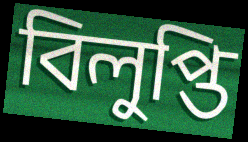
বিলুপ্তি